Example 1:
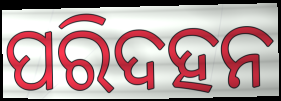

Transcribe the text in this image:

ପରିଦହନ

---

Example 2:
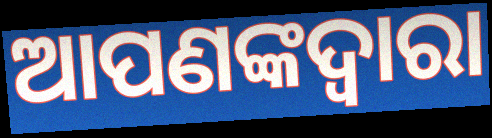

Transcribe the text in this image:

ଆପଣଙ୍କଦ୍ବାରା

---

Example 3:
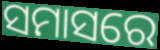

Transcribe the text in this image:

ସମାସରେ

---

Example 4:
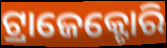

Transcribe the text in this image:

ଟ୍ରାଜେକ୍ଟୋରି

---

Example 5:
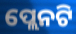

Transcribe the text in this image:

ପ୍ଲେନଟି